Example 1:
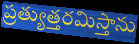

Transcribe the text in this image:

ప్రత్యుత్తరమిస్తాను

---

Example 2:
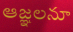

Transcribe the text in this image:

ఆజ్ఞలనూ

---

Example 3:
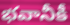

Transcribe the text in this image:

భవానీకీ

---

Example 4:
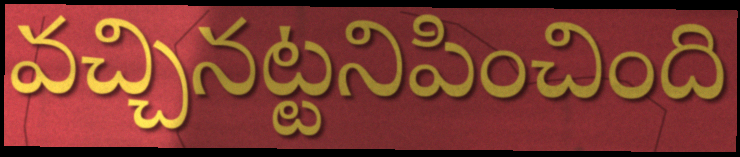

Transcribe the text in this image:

వచ్చినట్టనిపించింది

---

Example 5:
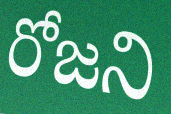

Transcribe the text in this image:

రోజని